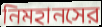
নিমহানসের